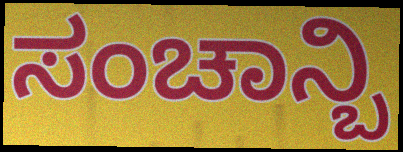
ಸಂಚಾನ್ಬಿ